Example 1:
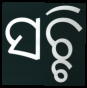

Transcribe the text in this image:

ସଚ୍ଚି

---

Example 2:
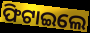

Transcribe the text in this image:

ଫିଟାଇଲେ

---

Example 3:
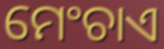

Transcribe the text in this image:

ମେଂଚାଏ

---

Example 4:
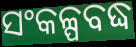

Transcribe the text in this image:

ସଂକଳ୍ପବଦ୍ଧ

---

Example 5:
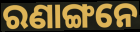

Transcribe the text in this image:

ରଣାଙ୍ଗନେ